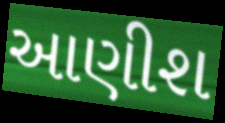
આણીશ